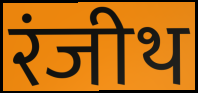
रंजीथ